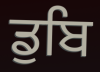
ਡੁਬਿ